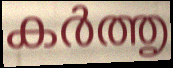
കർത്തൃ